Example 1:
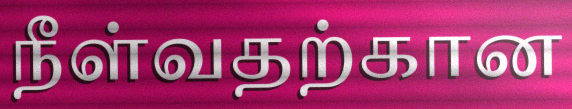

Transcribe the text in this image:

நீள்வதற்கான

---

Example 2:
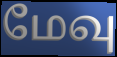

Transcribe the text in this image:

மேவு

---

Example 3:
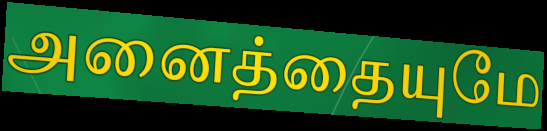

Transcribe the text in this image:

அனைத்தையுமே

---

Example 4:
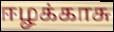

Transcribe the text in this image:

ஈழக்காசு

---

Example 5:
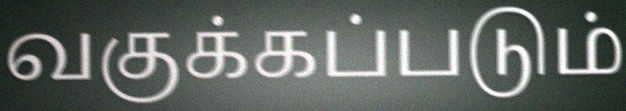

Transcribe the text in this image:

வகுக்கப்படும்